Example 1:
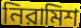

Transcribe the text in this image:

নিরামিশ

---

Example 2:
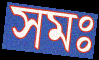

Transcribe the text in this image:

সমঃ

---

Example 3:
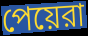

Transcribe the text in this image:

পেয়েরা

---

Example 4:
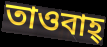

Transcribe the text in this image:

তাওবাহ্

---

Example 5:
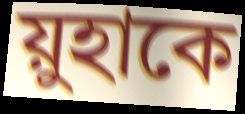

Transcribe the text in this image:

য়ুহাকে